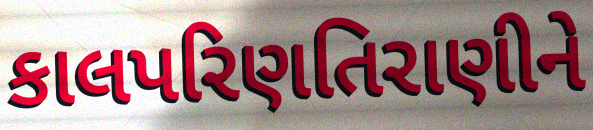
કાલપરિણતિરાણીને